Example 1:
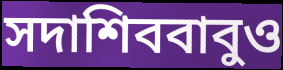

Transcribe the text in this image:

সদাশিববাবুও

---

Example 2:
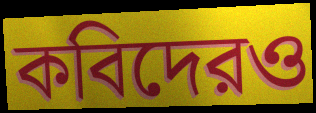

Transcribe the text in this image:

কবিদেরও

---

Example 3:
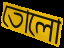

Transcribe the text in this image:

তোলো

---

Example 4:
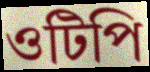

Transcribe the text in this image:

ওটিপি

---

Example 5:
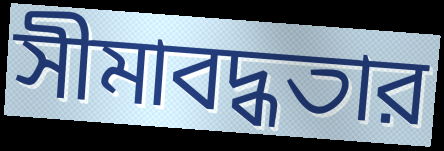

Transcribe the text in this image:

সীমাবদ্ধতার